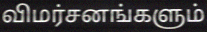
விமர்சனங்களும்